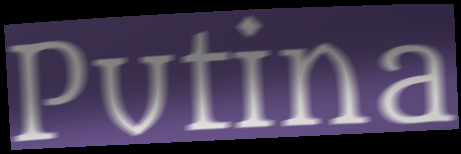
Putina